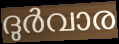
ദുർവാര